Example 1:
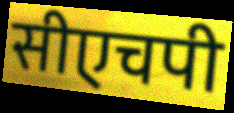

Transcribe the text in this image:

सीएचपी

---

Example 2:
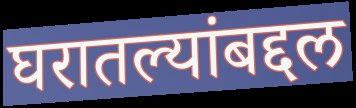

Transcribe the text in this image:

घरातल्यांबद्दल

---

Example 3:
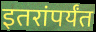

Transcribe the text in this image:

इतरांपर्यंत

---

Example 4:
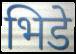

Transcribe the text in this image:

भिडे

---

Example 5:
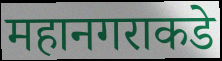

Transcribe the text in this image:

महानगराकडे